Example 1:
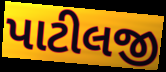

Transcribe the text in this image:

પાટીલજી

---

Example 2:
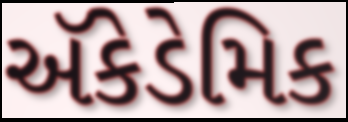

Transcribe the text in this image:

ઍકેડેમિક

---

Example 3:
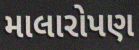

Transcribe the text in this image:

માલારોપણ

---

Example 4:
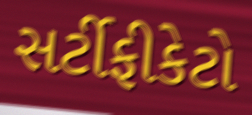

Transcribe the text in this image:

સર્ટીફીકેટો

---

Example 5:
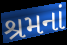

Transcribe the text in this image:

શ્રમનાં